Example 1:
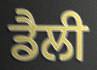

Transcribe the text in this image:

ਡੈਲੀ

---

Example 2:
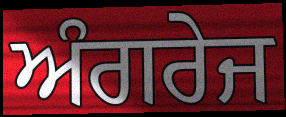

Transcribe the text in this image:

ਅੰਗਰੇਜ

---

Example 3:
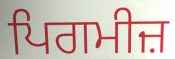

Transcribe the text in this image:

ਪਿਗਮੀਜ਼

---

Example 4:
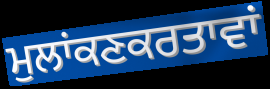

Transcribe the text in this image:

ਮੁਲਾਂਕਣਕਰਤਾਵਾਂ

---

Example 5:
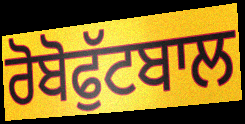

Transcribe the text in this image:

ਰੋਬੋਫੁੱਟਬਾਲ